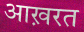
आख़रत